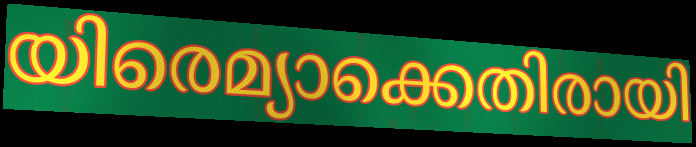
യിരെമ്യാക്കെതിരായി